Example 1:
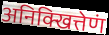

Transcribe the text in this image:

अनिक्खित्तेणं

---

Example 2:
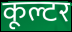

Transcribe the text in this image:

कूल्‍टर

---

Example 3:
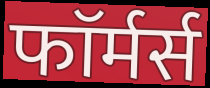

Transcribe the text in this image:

फॉर्मर्स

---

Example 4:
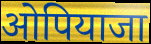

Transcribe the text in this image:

ओपियाजा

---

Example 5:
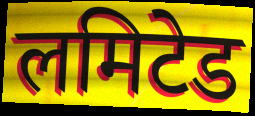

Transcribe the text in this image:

लमिटेड